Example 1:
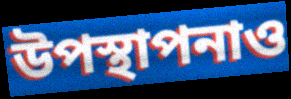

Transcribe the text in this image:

উপস্থাপনাও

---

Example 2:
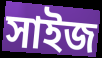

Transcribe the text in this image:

সাইজ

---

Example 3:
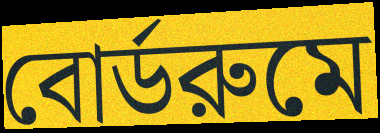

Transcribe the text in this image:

বোর্ডরুমে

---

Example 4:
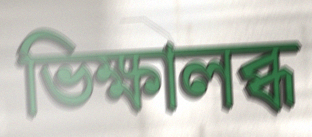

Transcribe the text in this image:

ভিক্ষালব্ধ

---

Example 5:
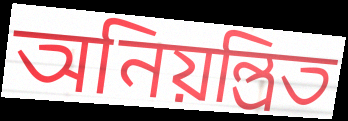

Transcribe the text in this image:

অনিয়ন্ত্রিত